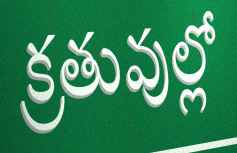
క్రతువుల్లో